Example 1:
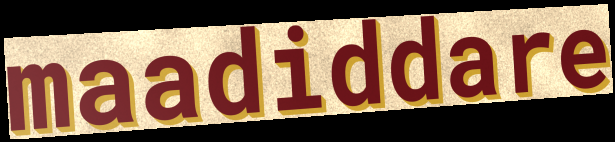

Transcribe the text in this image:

maadiddare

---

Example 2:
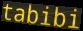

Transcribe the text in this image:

tabibi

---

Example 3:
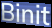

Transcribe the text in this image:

Binit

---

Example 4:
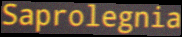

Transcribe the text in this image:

Saprolegnia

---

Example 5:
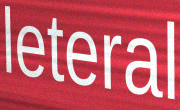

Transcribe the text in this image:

leteral